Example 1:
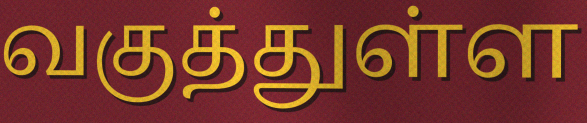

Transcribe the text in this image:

வகுத்துள்ள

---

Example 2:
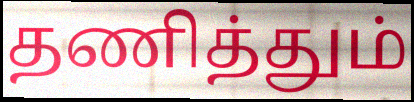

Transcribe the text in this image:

தணித்தும்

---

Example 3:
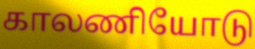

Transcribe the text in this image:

காலணியோடு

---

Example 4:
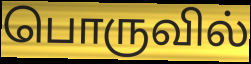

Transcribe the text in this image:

பொருவில்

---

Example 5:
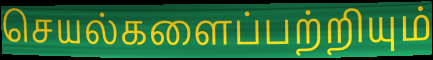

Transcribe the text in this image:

செயல்களைப்பற்றியும்